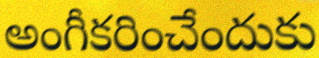
అంగీకరించేందుకు